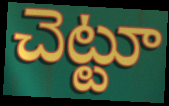
చెట్టూ